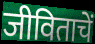
जीविताचें